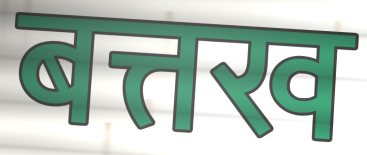
बत्तख